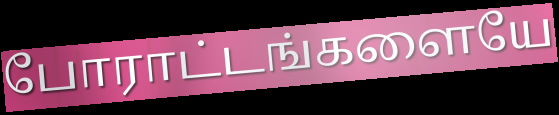
போராட்டங்களையே